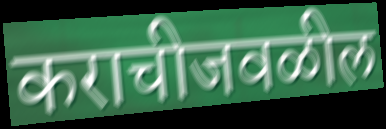
कराचीजवळील